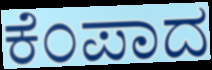
ಕೆಂಪಾದ